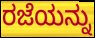
ರಜೆಯನ್ನು